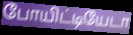
போயிட்டியேடா